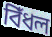
বিঁধল